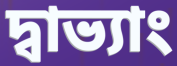
দ্বাভ্যাং